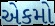
એકમો